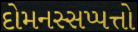
દોમનસ્સપ્પત્તો